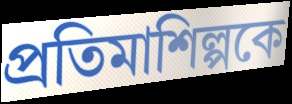
প্রতিমাশিল্পকে